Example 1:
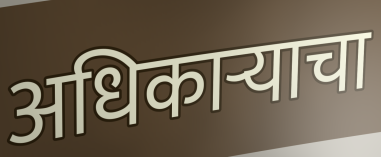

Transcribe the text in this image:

अधिकार्‍याचा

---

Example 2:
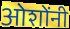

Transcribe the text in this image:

ओशोंनी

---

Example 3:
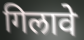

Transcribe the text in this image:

गिलावे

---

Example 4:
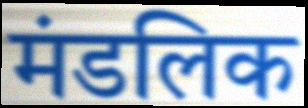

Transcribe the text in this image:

मंडलिक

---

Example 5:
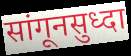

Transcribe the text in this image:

सांगूनसुध्दा